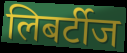
लिबर्टीज